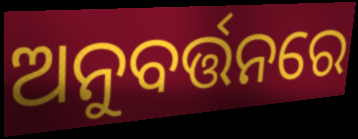
ଅନୁବର୍ତ୍ତନରେ